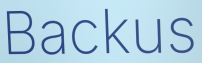
Backus